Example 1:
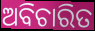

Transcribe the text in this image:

ଅବିଚାରିତ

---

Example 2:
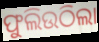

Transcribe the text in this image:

ଫୁଲିଉଠିଲା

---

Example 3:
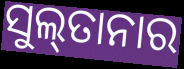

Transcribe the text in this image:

ସୁଲ୍‌ତାନାର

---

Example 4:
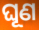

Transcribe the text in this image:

ଘୂଣ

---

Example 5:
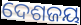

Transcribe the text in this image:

ଦେଶଜୟ